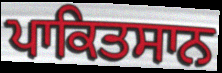
ਪਾਕਿਤਸਾਨ